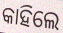
କାହିଲେ